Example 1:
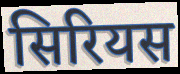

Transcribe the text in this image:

सिरियस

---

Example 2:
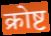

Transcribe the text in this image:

क्रोष्ट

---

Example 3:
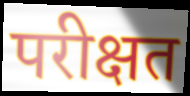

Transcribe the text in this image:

परीक्षत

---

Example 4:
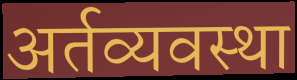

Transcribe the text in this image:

अर्तव्यवस्था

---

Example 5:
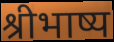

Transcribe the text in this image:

श्रीभाष्य